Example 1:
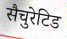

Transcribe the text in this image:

सैचुरेटिड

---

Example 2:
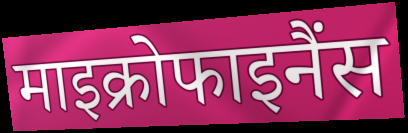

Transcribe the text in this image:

माइक्रोफाइनैंस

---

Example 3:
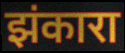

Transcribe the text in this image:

झंकारा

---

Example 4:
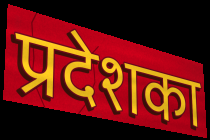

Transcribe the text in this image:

प्रदेशका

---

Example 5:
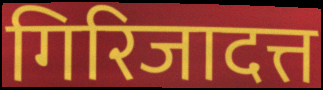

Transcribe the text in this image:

गिरिजादत्त